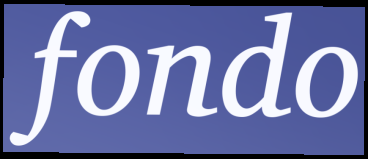
fondo